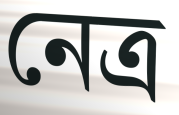
নেত্র